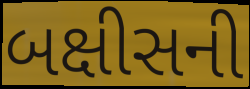
બક્ષીસની